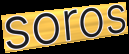
soros